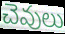
చెవులు